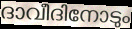
ദാവീദിനോടും